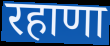
रहाणा